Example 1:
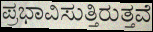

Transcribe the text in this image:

ಪ್ರಭಾವಿಸುತ್ತಿರುತ್ತವೆ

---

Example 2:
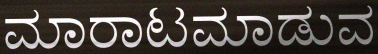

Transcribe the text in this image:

ಮಾರಾಟಮಾಡುವ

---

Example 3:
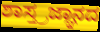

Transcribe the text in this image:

ಶಾಸ್ತ್ರಜ್ಞಾನದ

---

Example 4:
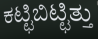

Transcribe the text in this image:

ಕಟ್ಟಿಬಿಟ್ಟಿತ್ತು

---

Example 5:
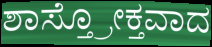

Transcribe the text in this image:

ಶಾಸ್ತ್ರೋಕ್ತವಾದ